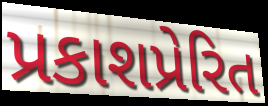
પ્રકાશપ્રેરિત